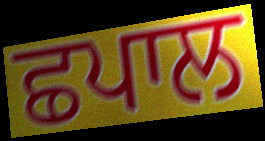
ਛਪਾਲ